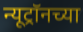
न्यूट्रॉनच्या